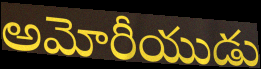
అమోరీయుడు